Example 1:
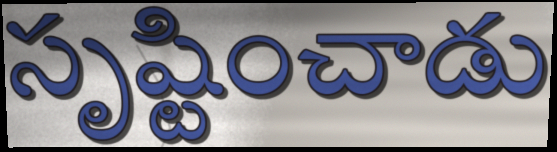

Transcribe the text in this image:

సృష్టించాడు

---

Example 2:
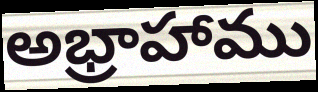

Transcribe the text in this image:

అభ్రాహాము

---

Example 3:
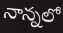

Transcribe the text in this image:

నాన్నలో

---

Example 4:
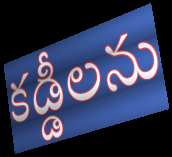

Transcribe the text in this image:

కడ్డీలను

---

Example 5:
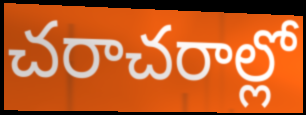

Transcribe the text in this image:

చరాచరాల్లో